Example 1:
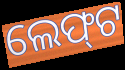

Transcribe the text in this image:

ଲେଫ୍‌ଟ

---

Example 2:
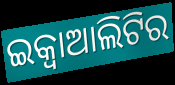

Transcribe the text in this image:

ଇକ୍ୱାଆଲିଟିର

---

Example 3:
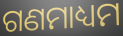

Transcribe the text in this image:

ଗଣମାଧ୍ୟମ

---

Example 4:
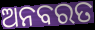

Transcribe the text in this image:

ଅନବରତ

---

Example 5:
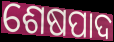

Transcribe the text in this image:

ଶେଷପାଦ